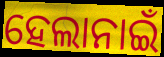
ହେଲାନାଇଁ